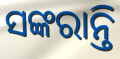
ସଙ୍କରାନ୍ତି